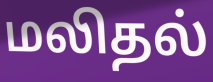
மலிதல்